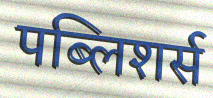
पब्लिशर्स